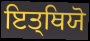
ਇਤ੍ਥਿਯੋ